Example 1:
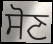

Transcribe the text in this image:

ਸੋਣ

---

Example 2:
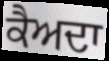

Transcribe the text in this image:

ਕੈਅਦਾ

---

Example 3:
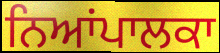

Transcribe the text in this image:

ਨਿਆਂਪਾਲਕਾ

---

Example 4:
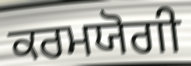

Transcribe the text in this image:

ਕਰਮਯੋਗੀ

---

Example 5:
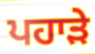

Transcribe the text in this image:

ਪਹਾੜੇ